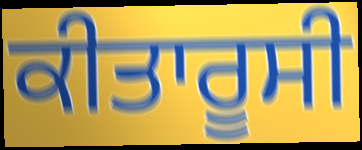
ਕੀਤਾਰੂਸੀ